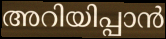
അറിയിപ്പാൻ